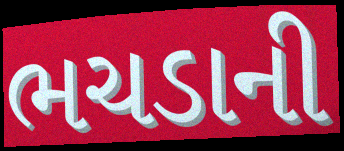
ભચડાની